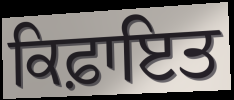
ਕਿਫ਼ਾਇਤ